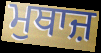
ਮੁਥਾਜ਼